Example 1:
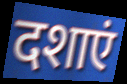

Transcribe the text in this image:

दशाएं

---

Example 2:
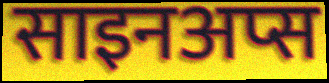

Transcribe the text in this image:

साइनअप्स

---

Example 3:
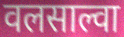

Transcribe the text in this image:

वलसाल्वा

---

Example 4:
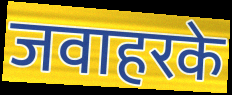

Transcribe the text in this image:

जवाहरके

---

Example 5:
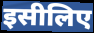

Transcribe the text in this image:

इसीलिए